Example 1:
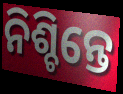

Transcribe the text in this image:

ନିଶ୍ଚିନ୍ତେ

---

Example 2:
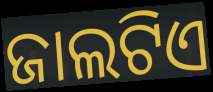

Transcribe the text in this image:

ଜାଲଟିଏ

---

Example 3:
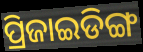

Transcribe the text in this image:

ପ୍ରିଜାଇଡିଙ୍ଗ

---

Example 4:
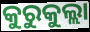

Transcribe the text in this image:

କୁରୁକୁଲ୍ଲା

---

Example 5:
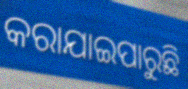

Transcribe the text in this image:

କରାଯାଇପାରୁଛି